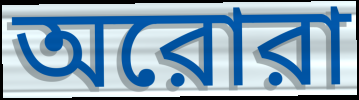
অরোরা